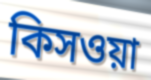
কিসওয়া